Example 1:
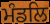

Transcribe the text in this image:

ਮੰਡਲਿ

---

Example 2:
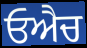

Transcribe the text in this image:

ਓਐਚ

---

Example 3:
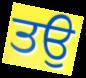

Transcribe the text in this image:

ਤਉ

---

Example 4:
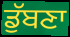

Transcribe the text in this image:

ਡੁੱਬਣਾ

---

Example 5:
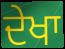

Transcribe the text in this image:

ਦੇਖਾ